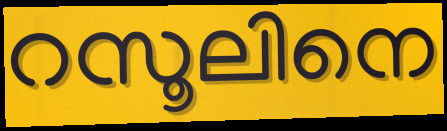
റസൂലിനെ